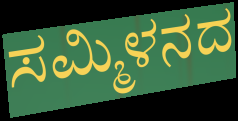
ಸಮ್ಮಿಳನದ